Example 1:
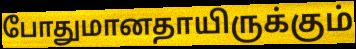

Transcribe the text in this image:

போதுமானதாயிருக்கும்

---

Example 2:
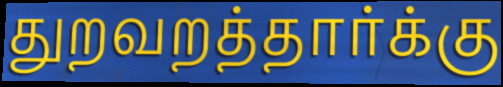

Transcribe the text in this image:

துறவறத்தார்க்கு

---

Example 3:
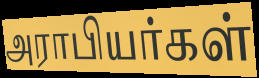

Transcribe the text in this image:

அராபியர்கள்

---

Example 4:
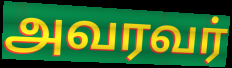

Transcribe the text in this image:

அவரவர்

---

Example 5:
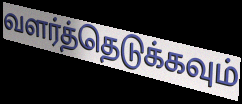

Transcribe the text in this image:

வளர்த்தெடுக்கவும்